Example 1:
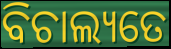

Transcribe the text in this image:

ବିଚାଲ୍ୟତେ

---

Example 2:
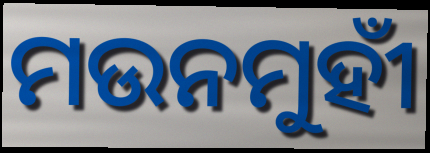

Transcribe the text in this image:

ମଉନମୁହୀଁ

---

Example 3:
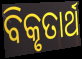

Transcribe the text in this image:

ବିକୃତାର୍ଥ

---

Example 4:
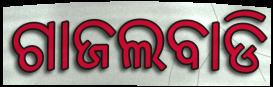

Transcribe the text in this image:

ଗାଜଲବାଡି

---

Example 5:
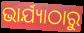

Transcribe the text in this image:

ଭାର୍ଯ୍ୟାଠାରୁ